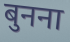
बुनना